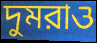
দুমরাও